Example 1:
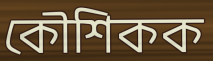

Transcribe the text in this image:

কৌশিকক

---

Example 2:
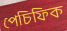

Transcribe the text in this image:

পেচিফিক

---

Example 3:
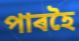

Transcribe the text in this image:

পাৰহৈ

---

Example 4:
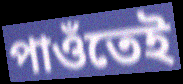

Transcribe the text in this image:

পাওঁতেই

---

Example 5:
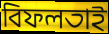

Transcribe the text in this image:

বিফলতাই